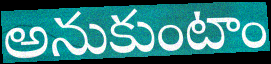
అనుకుంటాం